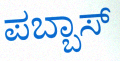
ಪಬ್ಬಾಸ್